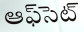
ఆఫ్‌సెట్